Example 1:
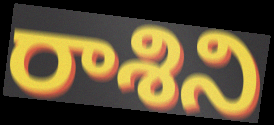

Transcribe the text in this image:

రాశిని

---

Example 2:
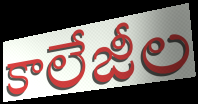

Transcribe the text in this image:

కాలేజీల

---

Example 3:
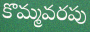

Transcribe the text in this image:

కొమ్మవరపు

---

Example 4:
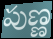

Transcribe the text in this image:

పుణ్ణ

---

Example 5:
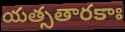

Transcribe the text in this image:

యత్సతారకాః